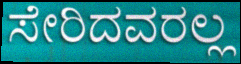
ಸೇರಿದವರಲ್ಲ